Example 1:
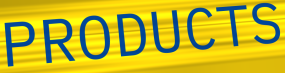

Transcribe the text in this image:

PRODUCTS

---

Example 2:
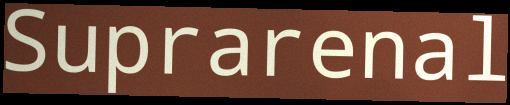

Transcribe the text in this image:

Suprarenal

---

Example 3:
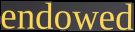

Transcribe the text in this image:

endowed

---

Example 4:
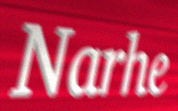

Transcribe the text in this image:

Narhe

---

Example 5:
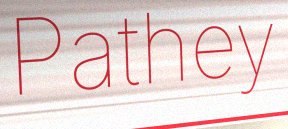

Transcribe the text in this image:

Pathey